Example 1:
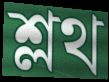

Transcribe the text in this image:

শ্লথ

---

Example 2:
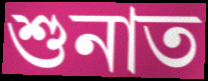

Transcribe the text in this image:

শুনাত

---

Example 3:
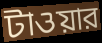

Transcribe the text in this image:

টাওয়ার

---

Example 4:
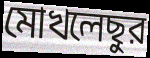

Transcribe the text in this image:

মোখলেছুর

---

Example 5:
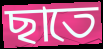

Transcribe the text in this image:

ছাতে